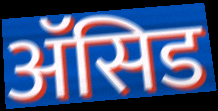
ॲसिड